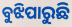
ବୁଝିପାରୁଛି